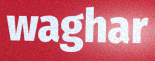
waghar